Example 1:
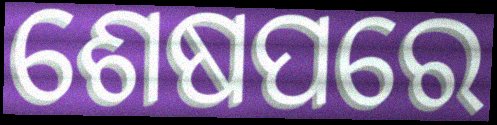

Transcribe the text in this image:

ଶେଷପରେ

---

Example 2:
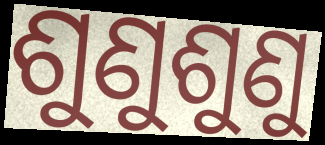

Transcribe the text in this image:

ଶୁଣୁଶୁଣୁ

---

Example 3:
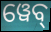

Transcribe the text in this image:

ୱେବ୍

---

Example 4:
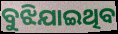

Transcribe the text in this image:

ବୁଝିଯାଇଥିବ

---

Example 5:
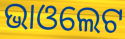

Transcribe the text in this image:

ଭାଓଲେଟ